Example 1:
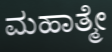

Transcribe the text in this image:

ಮಹಾತ್ಮೇ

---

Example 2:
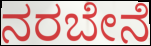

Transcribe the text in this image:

ನರಬೇನೆ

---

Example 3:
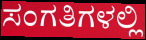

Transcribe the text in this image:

ಸಂಗತಿಗಳಲ್ಲಿ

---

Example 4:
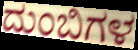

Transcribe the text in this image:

ದುಂಬಿಗಳ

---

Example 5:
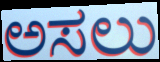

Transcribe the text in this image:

ಅಸಲು